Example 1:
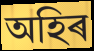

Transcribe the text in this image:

অহিৰ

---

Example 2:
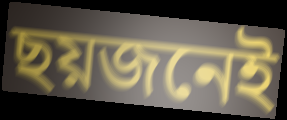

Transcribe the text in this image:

ছয়জনেই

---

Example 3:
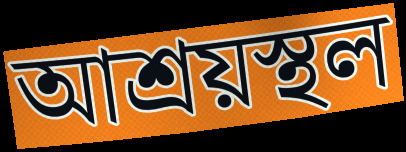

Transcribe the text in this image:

আশ্ৰয়স্থল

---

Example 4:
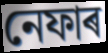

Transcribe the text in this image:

নেফাৰ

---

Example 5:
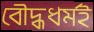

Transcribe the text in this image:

বৌদ্ধধৰ্মই